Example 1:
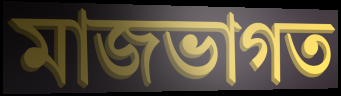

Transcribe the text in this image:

মাজভাগত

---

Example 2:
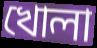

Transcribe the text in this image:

খোলা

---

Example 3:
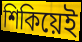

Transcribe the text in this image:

শিকিয়েই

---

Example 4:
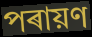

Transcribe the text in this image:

পৰায়ণ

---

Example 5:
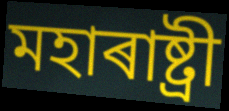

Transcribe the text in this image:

মহাৰাষ্ট্ৰী